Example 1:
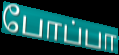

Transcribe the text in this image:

போப்பா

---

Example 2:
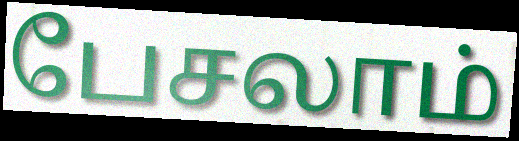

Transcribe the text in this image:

பேசலாம்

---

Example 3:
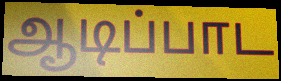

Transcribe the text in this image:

ஆடிப்பாட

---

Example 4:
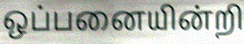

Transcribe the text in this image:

ஒப்பனையின்றி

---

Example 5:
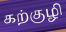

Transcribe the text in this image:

கற்குழி